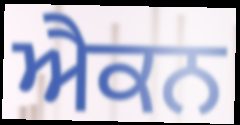
ਐਕਨ